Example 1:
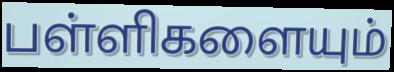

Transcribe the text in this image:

பள்ளிகளையும்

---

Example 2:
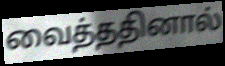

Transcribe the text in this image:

வைத்ததினால்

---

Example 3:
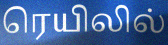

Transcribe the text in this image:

ரெயிலில்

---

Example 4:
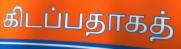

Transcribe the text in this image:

கிடப்பதாகத்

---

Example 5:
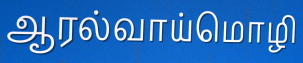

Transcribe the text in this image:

ஆரல்வாய்மொழி